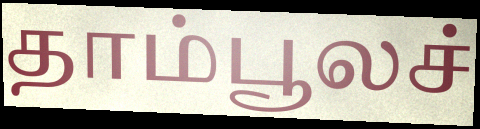
தாம்பூலச்